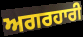
ਅਗਰਹਾਰੀ